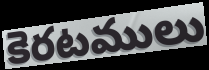
కెరటములు